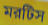
মরটিস